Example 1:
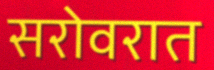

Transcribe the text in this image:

सरोवरात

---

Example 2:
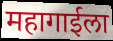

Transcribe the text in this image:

महागाईला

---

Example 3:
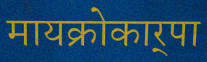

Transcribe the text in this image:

मायक्रोकार्पा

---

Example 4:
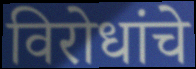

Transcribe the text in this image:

विरोधांचे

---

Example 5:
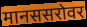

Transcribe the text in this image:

मानससरोवर